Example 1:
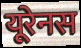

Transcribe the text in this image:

यूरेनस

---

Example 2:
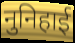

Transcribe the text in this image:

नुनिहाई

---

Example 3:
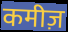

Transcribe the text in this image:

कमीज़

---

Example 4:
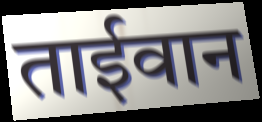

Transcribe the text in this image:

ताईवान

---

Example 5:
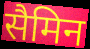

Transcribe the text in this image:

सैमिन